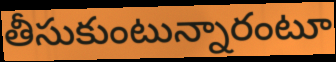
తీసుకుంటున్నారంటూ